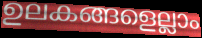
ഉലകങ്ങളെല്ലാം